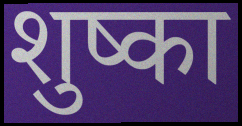
शुष्का